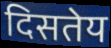
दिसतेय